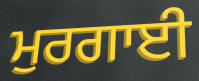
ਮੁਰਗਾਈ